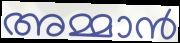
അമ്മാൻ